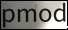
pmod